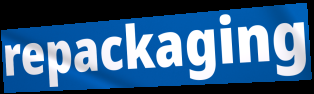
repackaging